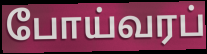
போய்வரப்